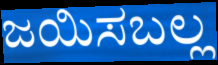
ಜಯಿಸಬಲ್ಲ